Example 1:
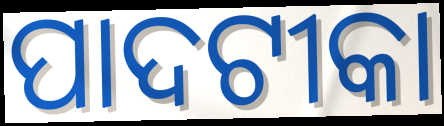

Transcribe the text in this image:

ପାଦଟୀକା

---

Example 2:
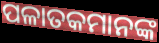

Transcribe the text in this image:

ପଳାତକମାନଙ୍କ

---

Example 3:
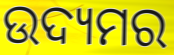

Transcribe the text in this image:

ଉଦ୍ୟମର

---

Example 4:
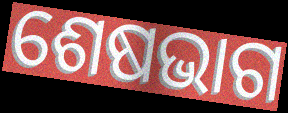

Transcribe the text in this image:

ଶେଷଭାଗ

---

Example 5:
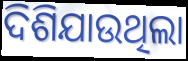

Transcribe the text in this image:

ଦିଶିଯାଉଥିଲା